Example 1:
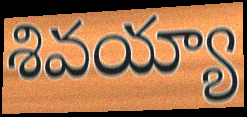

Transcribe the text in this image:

శివయ్యా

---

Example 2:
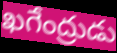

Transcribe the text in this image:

ఖగేంద్రుడు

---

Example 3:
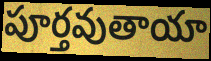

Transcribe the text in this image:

పూర్తవుతాయా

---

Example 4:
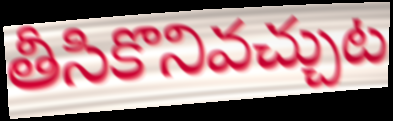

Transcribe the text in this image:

తీసికొనివచ్చుట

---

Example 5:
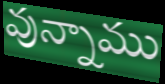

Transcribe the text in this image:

వున్నాము